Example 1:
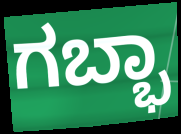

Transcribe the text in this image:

ಗಬ್ಭಾ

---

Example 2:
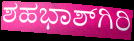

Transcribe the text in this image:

ಶಹಭಾಶ್‌ಗಿರಿ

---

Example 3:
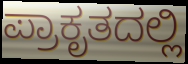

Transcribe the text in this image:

ಪ್ರಾಕೃತದಲ್ಲಿ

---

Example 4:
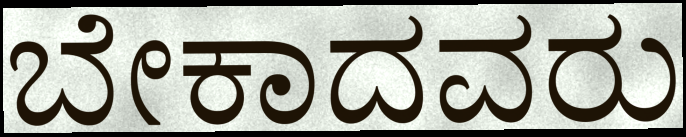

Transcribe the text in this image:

ಬೇಕಾದವರು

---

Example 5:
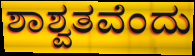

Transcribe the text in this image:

ಶಾಶ್ವತವೆಂದು